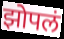
झोपलं